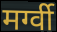
मर्ग्वी